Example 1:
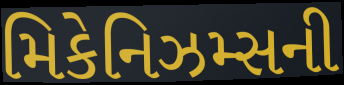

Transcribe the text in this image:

મિકેનિઝમ્સની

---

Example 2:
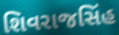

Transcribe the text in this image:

શિવરાજસિંહ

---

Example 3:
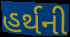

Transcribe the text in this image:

હર્થની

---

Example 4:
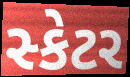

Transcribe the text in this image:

સ્કેટર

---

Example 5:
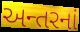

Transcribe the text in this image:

અન્તરનાં